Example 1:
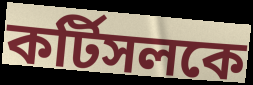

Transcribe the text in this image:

কর্টিসলকে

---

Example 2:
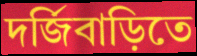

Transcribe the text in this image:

দর্জিবাড়িতে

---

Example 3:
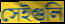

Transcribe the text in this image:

সেইগুলি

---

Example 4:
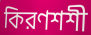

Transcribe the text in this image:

কিরণশশী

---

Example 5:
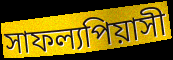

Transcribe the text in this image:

সাফল্যপিয়াসী